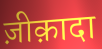
ज़ीक़ादा